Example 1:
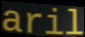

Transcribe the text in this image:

aril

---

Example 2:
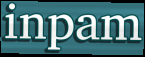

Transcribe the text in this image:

inpam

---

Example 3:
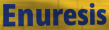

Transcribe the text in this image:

Enuresis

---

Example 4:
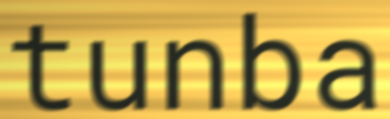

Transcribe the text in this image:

tunba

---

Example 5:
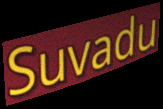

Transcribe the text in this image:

Suvadu